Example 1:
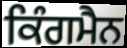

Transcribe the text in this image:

ਕਿੰਗਮੈਨ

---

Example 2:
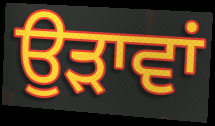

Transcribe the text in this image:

ਉੜਾਵਾਂ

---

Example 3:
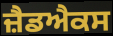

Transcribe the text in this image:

ਜ਼ੈਡਐਕਸ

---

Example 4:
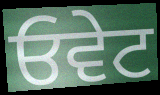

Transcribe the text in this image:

ਓਵੇਟ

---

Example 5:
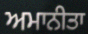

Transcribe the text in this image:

ਅਮਾਨੀਤਾ